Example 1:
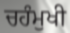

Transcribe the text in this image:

ਚਹੰਮੁਖੀ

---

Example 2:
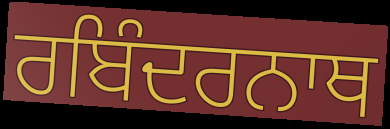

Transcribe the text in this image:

ਰਬਿੰਦਰਨਾਥ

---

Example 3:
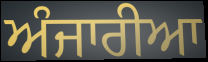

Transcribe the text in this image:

ਅੰਜਾਰੀਆ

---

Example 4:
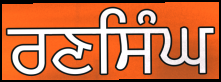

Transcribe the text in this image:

ਰਣਸਿੰਘ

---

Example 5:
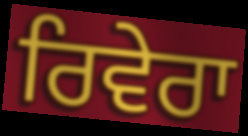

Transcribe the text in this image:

ਰਿਵੇਰਾ